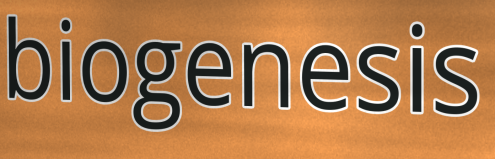
biogenesis